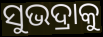
ସୁଭଦ୍ରାକୁ